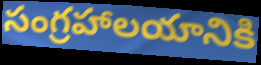
సంగ్రహాలయానికి